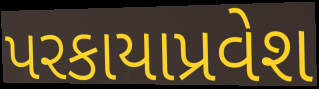
પરકાયાપ્રવેશ